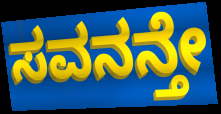
ಸವನನ್ತೇ